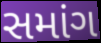
સમાંગ